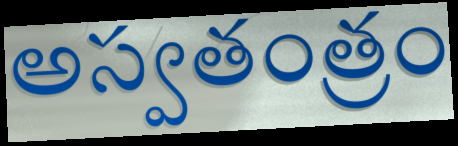
అస్వతంత్రం